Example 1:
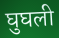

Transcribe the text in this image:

घुघली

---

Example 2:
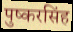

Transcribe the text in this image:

पुष्करसिंह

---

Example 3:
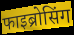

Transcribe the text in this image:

फाइब्रोसिंग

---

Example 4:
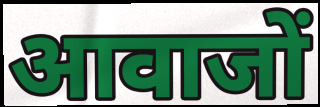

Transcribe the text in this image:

आवाजों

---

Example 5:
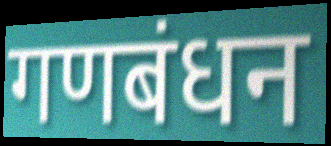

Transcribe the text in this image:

गणबंधन